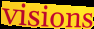
visions